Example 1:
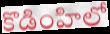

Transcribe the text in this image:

కొడింహిలో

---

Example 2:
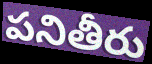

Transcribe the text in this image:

పనితీరు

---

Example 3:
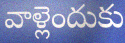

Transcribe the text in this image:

వాళ్లెందుకు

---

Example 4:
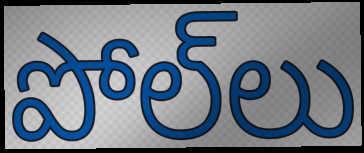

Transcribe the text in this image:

పోల్‌లు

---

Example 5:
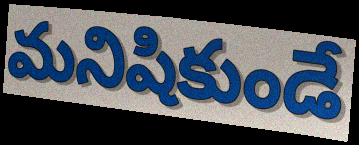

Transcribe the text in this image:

మనిషికుండే